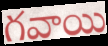
గవాయి